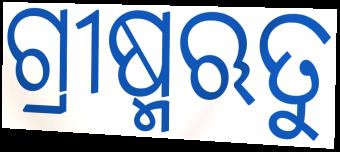
ଗ୍ରୀଷ୍ମଋତୁ